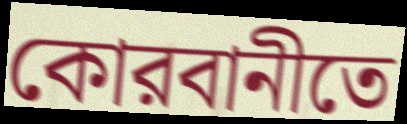
কোরবানীতে